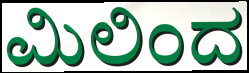
ಮಿಲಿಂದ